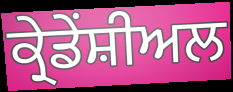
ਕ੍ਰੇਡੇਂਸ਼ੀਅਲ